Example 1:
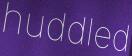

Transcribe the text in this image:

huddled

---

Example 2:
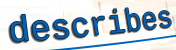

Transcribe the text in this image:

describes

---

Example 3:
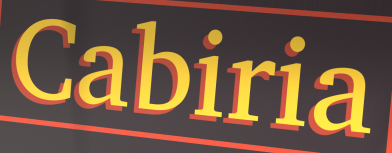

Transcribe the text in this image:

Cabiria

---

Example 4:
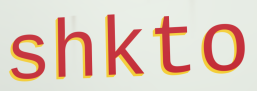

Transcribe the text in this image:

shkto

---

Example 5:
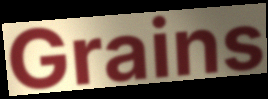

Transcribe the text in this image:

Grains